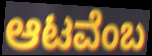
ಆಟವೆಂಬ